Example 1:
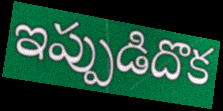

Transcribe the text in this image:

ఇప్పుడిదొక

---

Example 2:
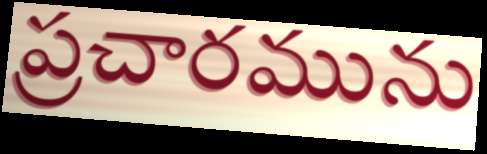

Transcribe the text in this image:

ప్రచారమును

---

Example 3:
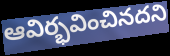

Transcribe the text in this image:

ఆవిర్భవించినదని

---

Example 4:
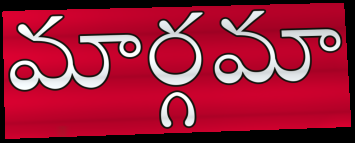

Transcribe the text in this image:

మార్గమా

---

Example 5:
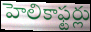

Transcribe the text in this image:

హెలికాఫ్టర్లు